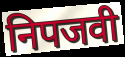
निपजवी